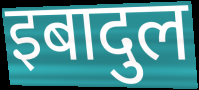
इबादुल